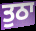
ਤੁਠਾ